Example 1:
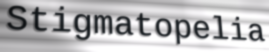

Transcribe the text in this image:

Stigmatopelia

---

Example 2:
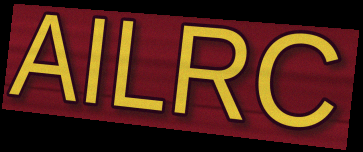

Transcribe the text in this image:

AILRC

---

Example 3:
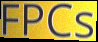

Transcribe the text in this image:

FPCs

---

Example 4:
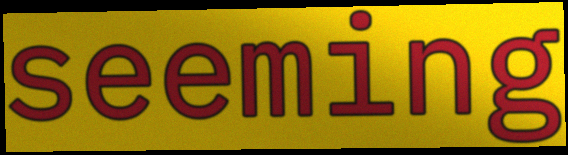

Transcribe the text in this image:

seeming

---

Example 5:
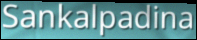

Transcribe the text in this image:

Sankalpadina